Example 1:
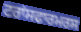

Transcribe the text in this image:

ਟਰਾਂਸਫਾਰਮਰਸ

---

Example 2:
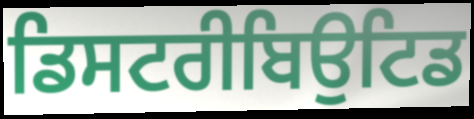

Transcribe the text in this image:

ਡਿਸਟਰੀਬਿਉਟਿਡ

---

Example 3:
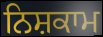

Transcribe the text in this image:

ਨਿਸ਼ਕਾਮ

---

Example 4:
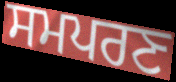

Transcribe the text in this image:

ਸਮਪਰਣ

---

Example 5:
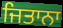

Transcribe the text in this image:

ਜਿਤਾਨਾ